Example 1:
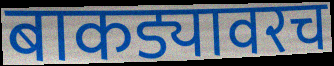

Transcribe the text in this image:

बाकड्यावरच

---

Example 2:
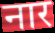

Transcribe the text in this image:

नार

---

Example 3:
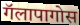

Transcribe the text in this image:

गॅलापागोस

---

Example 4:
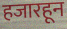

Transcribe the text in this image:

हजारहून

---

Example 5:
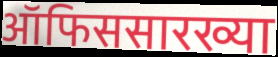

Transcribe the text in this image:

ऑफिससारख्या